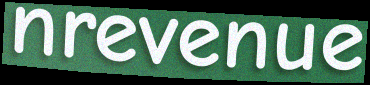
nrevenue